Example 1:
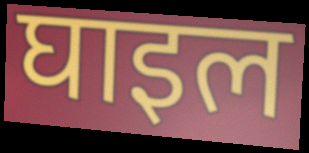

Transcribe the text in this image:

घाइल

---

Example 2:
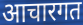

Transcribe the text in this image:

आचारगत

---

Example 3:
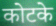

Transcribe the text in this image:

कोटके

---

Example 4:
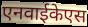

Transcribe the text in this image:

एनवाईकेएस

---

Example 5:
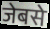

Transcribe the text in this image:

जेबसे